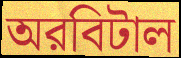
অরবিটাল